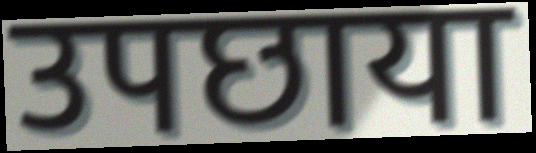
उपछाया